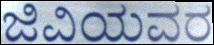
ಜಿವಿಯವರ